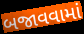
બજાવવામાં